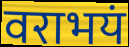
वराभयं